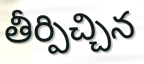
తీర్పిచ్చిన